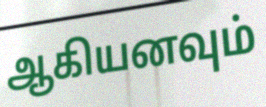
ஆகியனவும்